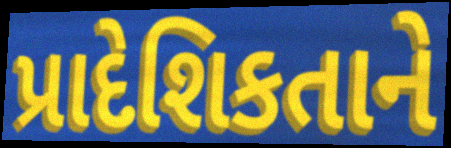
પ્રાદેશિકતાને